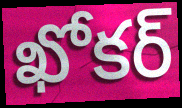
ఖోకర్